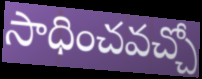
సాధించవచ్చో